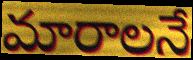
మారాలనే